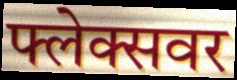
फ्लेक्सवर